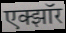
एक्झॉर